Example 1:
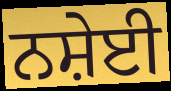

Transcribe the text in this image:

ਨਸ਼ੇਈ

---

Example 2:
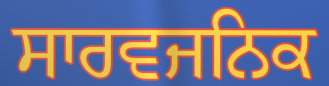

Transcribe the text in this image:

ਸਾਰਵਜਨਿਕ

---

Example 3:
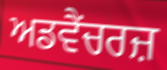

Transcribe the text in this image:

ਅਡਵੈਂਚਰਜ਼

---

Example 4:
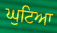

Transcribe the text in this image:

ਘੁਟਿਆ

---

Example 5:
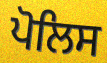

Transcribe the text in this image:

ਪੋਲਿਸ